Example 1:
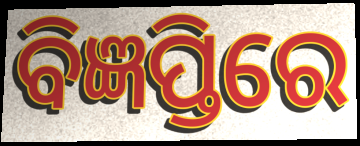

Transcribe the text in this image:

ବିଜ୍ଞପ୍ତିରେ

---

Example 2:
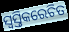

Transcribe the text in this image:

ସ୍ୱସ୍ତିକରେଚିତ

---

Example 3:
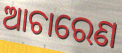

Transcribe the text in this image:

ଆଚାରେଣ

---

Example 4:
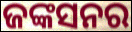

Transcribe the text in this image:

ଜଙ୍କସନର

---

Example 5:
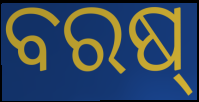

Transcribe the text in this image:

ବରଷ୍